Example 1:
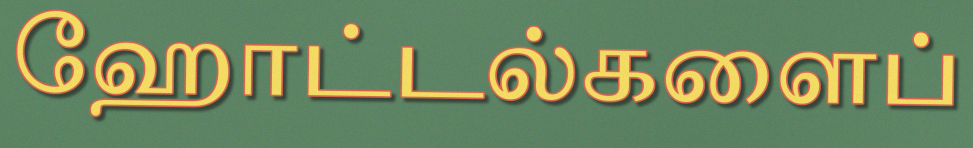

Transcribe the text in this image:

ஹோட்டல்களைப்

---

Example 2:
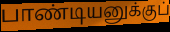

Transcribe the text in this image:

பாண்டியனுக்குப்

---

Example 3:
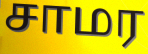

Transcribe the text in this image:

சாமர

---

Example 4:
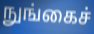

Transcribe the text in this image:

நுங்கைச்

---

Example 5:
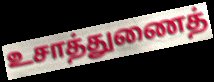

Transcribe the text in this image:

உசாத்துணைத்